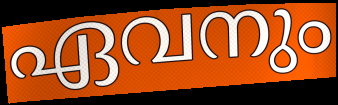
ഏവനും